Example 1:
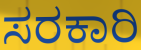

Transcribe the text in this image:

ಸರಕಾರಿ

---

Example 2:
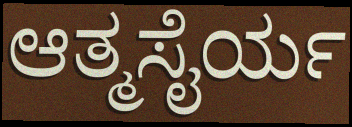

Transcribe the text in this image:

ಆತ್ಮಸೈರ್ಯ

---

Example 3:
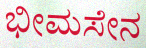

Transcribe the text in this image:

ಭೀಮಸೇನ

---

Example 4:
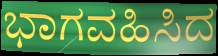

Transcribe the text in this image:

ಭಾಗವಹಿಸಿದ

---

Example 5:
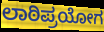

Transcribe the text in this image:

ಲಾಠಿಪ್ರಯೋಗ